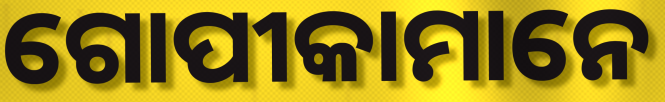
ଗୋପୀକାମାନେ